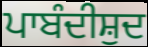
ਪਾਬੰਦੀਸ਼ੁਦ